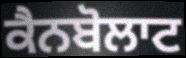
ਕੈਨਬੋਲਾਟ